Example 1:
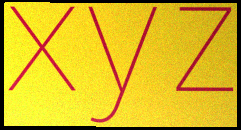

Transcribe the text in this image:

xyz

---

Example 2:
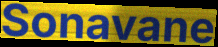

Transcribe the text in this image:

Sonavane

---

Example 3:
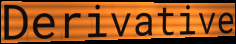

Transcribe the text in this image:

Derivative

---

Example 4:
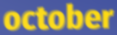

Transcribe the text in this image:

october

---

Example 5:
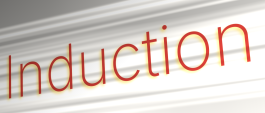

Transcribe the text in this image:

Induction